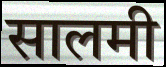
सालमी